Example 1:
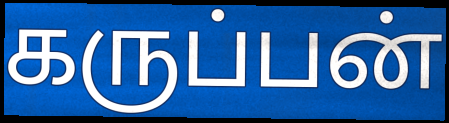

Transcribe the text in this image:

கருப்பன்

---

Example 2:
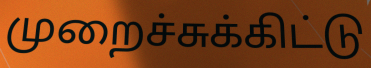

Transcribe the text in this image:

முறைச்சுக்கிட்டு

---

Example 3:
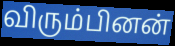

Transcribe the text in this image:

விரும்பினன்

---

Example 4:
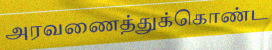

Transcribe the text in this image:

அரவணைத்துக்கொண்ட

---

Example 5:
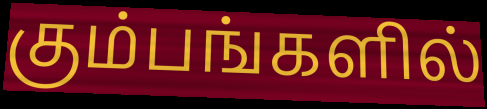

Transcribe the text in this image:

கும்பங்களில்